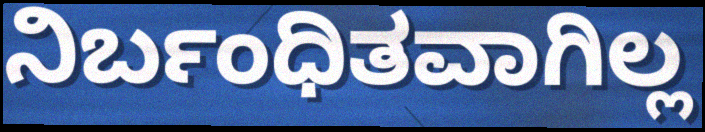
ನಿರ್ಬಂಧಿತವಾಗಿಲ್ಲ